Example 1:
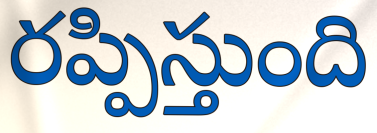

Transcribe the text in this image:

రప్పిస్తుంది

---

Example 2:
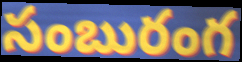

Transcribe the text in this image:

సంబురంగ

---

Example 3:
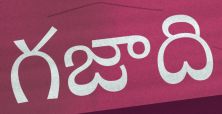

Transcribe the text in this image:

గజాది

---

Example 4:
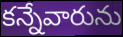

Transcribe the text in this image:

కన్నేవారును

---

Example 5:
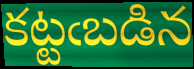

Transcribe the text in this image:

కట్టఁబడిన